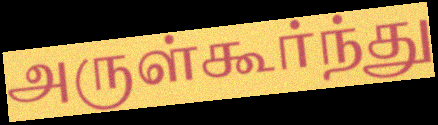
அருள்கூர்ந்து